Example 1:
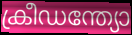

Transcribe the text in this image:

ക്രീഡന്ത്യോ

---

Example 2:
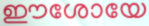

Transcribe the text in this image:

ഈശോയേ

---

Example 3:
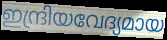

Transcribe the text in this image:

ഇന്ദ്രിയവേദ്യമായ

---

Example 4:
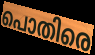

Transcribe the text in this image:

പൊതിരെ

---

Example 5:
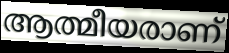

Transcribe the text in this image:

ആത്മീയരാണ്